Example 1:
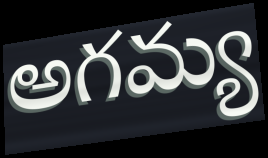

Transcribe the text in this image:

అగమ్య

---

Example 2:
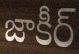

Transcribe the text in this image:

జాకీర్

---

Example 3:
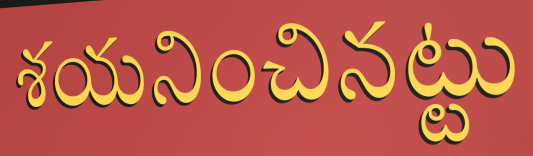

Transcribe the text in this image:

శయనించినట్టు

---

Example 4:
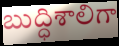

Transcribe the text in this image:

బుద్ధిశాలిగా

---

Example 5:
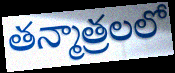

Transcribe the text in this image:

తన్మాత్రలలో